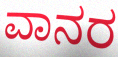
ವಾನರ